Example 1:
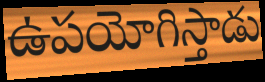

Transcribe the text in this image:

ఉపయోగిస్తాడు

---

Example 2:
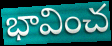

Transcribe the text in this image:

భావించ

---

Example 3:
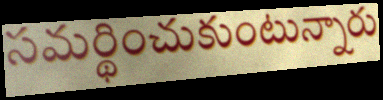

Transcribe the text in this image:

సమర్థించుకుంటున్నారు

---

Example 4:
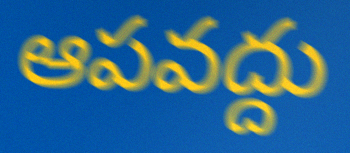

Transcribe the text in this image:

ఆపవద్దు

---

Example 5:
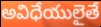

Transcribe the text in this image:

అవిధేయులైతే